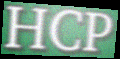
HCP